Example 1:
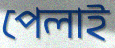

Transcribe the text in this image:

পেলাই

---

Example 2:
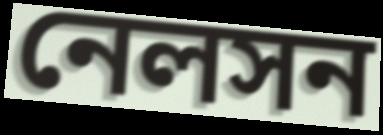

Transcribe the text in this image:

নেলসন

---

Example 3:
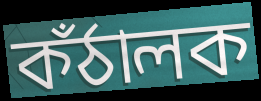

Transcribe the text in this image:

কঁঠালক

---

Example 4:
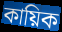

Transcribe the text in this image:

কায়িক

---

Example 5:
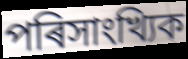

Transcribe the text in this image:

পৰিসাংখ্যিক